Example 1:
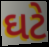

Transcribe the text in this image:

ઘટે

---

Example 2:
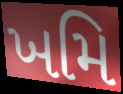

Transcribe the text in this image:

ખમિ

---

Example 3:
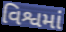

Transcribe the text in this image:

વિશ્વમાં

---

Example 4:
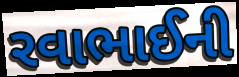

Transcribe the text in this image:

રવાભાઈની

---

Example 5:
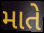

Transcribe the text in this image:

માતે